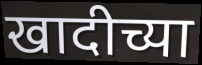
खादीच्या